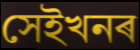
সেইখনৰ